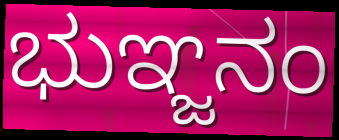
ಭುಞ್ಜನಂ